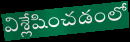
విశ్లేషించడంలో